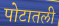
पोटातली